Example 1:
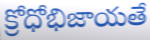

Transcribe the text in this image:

క్రోధోభిజాయతే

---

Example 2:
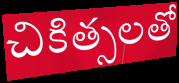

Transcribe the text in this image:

చికిత్సలతో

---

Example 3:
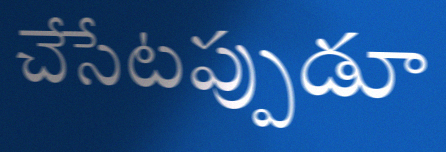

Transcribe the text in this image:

చేసేటప్పుడూ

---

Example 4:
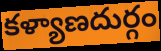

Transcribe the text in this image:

కళ్యాణదుర్గం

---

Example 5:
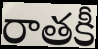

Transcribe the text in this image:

రాతకీ